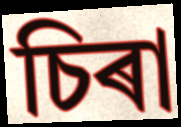
চিৰা